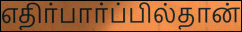
எதிர்பார்ப்பில்தான்